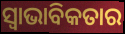
ସ୍ୱାଭାବିକତାର